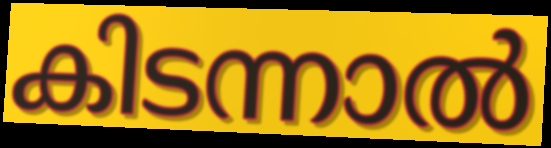
കിടന്നാൽ